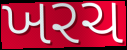
ખરચ